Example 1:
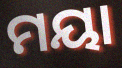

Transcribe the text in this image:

ମୟା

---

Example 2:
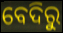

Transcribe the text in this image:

ବେଦିରୁ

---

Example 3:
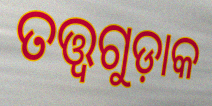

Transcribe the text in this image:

ତତ୍ତ୍ୱଗୁଡ଼ାକ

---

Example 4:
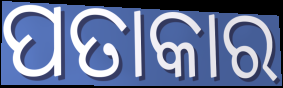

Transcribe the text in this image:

ପତାକାର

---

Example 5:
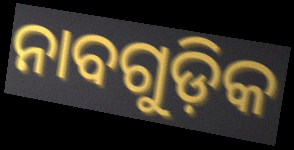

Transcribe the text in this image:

ନାବଗୁଡ଼ିକ